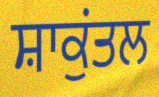
ਸ਼ਾਕੁਂਤਲ